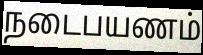
நடைபயணம்